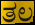
ತಲ